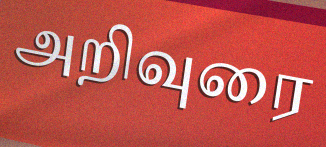
அறிவுரை